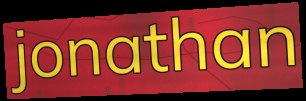
jonathan